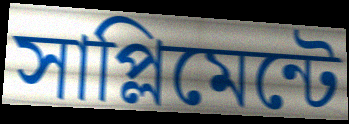
সাপ্লিমেন্টে